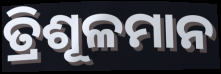
ତ୍ରିଶୂଳମାନ